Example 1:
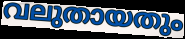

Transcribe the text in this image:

വലുതായതും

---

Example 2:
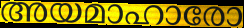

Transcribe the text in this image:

അയമാഹാരോ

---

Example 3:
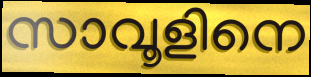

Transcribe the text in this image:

സാവൂളിനെ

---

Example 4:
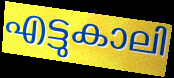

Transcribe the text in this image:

എട്ടുകാലി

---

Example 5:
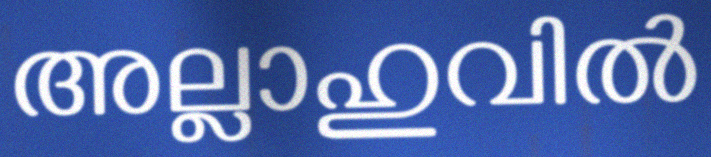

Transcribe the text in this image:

അല്ലാഹുവിൽ